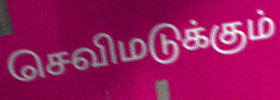
செவிமடுக்கும்